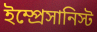
ইম্প্রেসানিস্ট